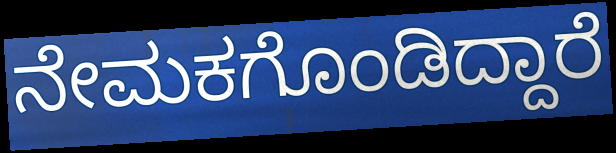
ನೇಮಕಗೊಂಡಿದ್ದಾರೆ